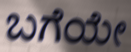
ಬಗೆಯೇ